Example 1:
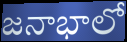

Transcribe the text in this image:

జనాభాలో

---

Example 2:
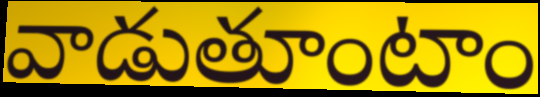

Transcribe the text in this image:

వాడుతూంటాం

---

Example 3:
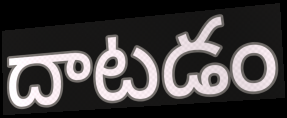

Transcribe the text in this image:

దాటడం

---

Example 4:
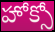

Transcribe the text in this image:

హోక్సో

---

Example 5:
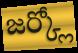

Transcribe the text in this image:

జర్క్లో